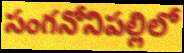
సంగనోనిపల్లిలో